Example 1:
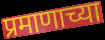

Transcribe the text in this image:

प्रमाणाच्या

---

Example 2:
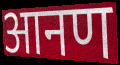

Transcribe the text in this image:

आनण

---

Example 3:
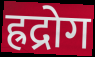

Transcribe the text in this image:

ह्रद्रोग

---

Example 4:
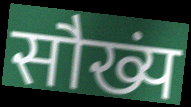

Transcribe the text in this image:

सौख्यं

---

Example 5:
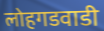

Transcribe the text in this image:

लोहगडवाडी